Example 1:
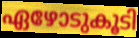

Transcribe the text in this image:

ഏഴോടുകൂടി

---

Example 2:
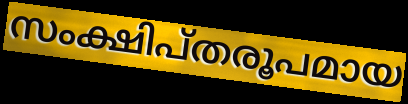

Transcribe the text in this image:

സംക്ഷിപ്തരൂപമായ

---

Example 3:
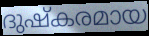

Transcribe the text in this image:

ദുഷ്കരമായ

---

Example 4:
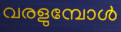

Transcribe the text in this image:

വരളുമ്പോൾ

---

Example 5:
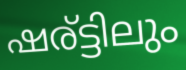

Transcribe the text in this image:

ഷര്ട്ടിലും